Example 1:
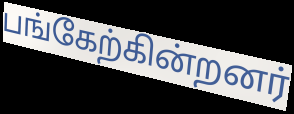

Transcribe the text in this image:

பங்கேற்கின்றனர்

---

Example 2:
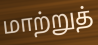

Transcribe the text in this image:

மாற்றுத்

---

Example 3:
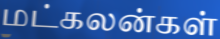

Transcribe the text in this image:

மட்கலன்கள்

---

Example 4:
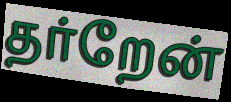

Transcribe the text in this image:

தர்றேன்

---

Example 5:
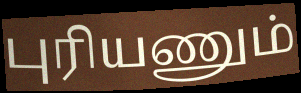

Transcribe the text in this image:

புரியணும்